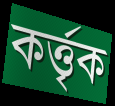
কর্ত্তৃক